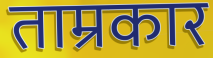
ताम्रकार